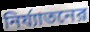
নির্য্যাতনের